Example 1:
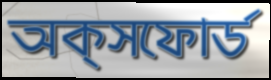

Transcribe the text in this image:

অক্‌সফোর্ড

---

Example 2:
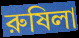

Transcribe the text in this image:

রুষিলা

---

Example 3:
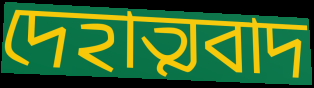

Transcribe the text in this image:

দেহাত্মবাদ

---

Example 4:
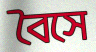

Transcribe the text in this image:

বৈসে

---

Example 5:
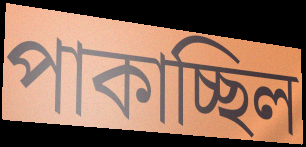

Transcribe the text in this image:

পাকাচ্ছিল